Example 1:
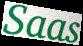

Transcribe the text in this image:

Saas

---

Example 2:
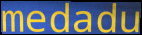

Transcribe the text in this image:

medadu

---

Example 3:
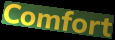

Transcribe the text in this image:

Comfort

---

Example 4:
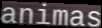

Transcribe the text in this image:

animas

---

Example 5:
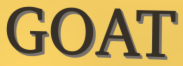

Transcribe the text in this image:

GOAT